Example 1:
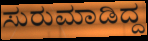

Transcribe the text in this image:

ಸುರುಮಾಡಿದ್ದ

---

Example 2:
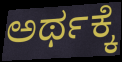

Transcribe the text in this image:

ಅರ್ಥಕ್ಕೆ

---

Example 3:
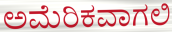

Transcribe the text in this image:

ಅಮೆರಿಕವಾಗಲಿ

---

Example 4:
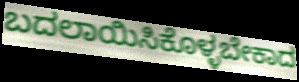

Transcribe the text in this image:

ಬದಲಾಯಿಸಿಕೊಳ್ಳಬೇಕಾದ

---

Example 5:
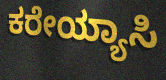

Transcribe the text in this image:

ಕರೇಯ್ಯಾಸಿ